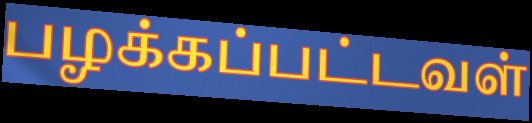
பழக்கப்பட்டவள்